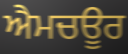
ਐਮਚਊਰ